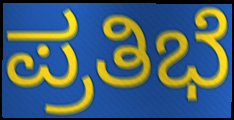
ಪ್ರತಿಭೆ